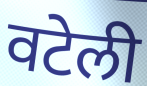
वटेली